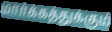
மார்க்கத்துக்கும்